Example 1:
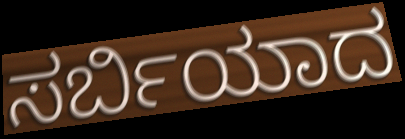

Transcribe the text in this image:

ಸರ್ಬಿಯಾದ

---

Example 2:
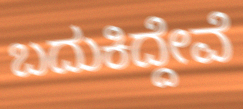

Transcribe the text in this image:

ಬದುಕಿದ್ದೇವೆ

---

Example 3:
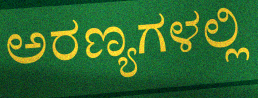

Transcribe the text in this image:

ಅರಣ್ಯಗಳಲ್ಲಿ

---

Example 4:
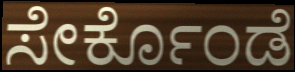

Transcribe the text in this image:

ಸೇರ್ಕೊಂಡೆ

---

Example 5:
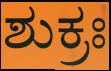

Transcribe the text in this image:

ಶುಕ್ರಃ